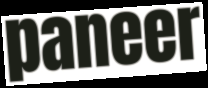
paneer